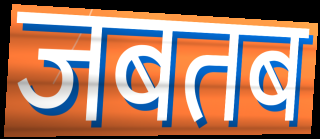
जबतब